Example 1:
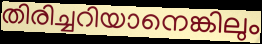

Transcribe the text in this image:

തിരിച്ചറിയാനെങ്കിലും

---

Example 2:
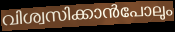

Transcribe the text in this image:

വിശ്വസിക്കാൻപോലും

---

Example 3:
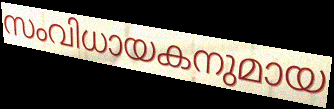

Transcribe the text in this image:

സംവിധായകനുമായ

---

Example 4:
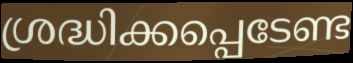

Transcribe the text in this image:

ശ്രദ്ധിക്കപ്പെടേണ്ട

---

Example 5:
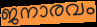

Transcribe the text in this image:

ജനാരവം